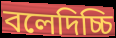
বলেদিচ্চি